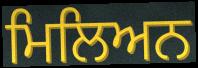
ਮਿਲਿਅਨ